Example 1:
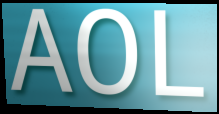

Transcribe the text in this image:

AOL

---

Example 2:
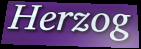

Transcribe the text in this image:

Herzog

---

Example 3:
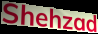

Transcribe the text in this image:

Shehzad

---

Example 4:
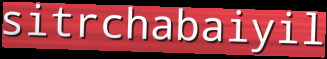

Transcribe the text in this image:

sitrchabaiyil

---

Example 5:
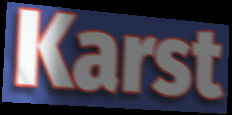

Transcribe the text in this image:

Karst